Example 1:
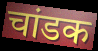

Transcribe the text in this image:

चांडक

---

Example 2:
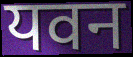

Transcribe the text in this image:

यवन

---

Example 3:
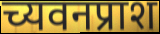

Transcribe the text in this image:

च्यवनप्राश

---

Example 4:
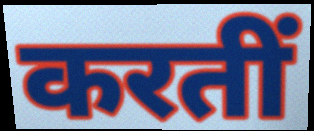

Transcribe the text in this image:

करतीं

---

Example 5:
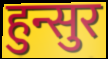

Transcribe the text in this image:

हुन्सुर